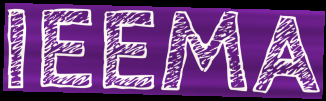
IEEMA